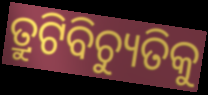
ତ୍ରୁଟିବିଚ୍ୟୁତିକୁ